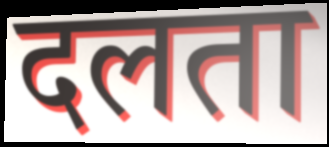
दलता